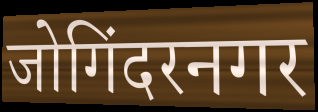
जोगिंदरनगर